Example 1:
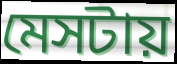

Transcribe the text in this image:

মেসটায়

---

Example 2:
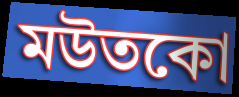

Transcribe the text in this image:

মউতকো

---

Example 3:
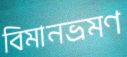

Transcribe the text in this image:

বিমানভ্রমণ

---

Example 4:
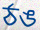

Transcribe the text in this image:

ঠঙ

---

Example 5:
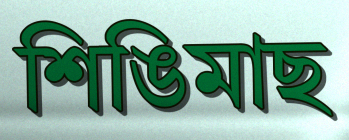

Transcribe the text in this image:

শিঙিমাছ